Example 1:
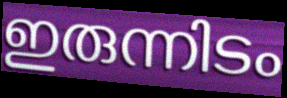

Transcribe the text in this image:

ഇരുന്നിടം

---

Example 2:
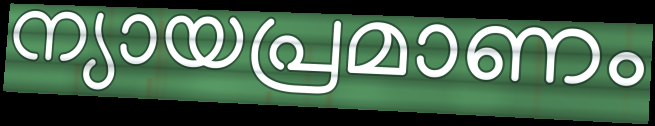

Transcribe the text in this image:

ന്യായപ്രമാണം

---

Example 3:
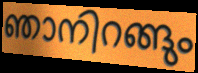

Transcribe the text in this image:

ഞാനിറങ്ങും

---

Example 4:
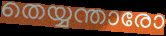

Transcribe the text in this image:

തെയ്യന്താരോ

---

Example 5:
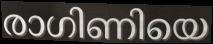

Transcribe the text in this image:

രാഗിണിയെ